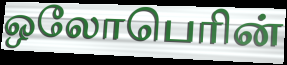
ஒலோபெரின்